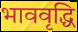
भाववृद्धि